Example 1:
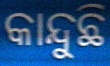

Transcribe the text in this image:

କାନ୍ଦୁଛି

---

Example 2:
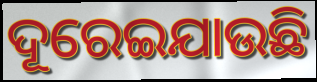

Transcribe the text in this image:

ଦୂରେଇଯାଉଛି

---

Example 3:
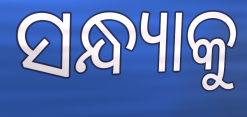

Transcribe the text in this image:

ସନ୍ଧ୍ୟାକୁ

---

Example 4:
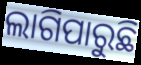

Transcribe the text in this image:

ଲାଗିପାରୁଛି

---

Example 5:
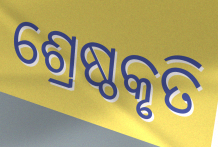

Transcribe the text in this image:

ଶ୍ରେଷ୍ଠକୃତି